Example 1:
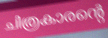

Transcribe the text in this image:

ചിത്രകാരന്റെ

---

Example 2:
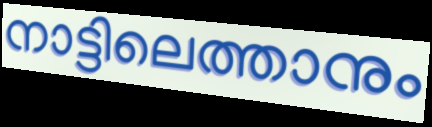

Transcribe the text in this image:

നാട്ടിലെത്താനും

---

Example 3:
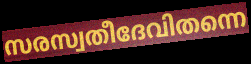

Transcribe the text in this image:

സരസ്വതീദേവിതന്നെ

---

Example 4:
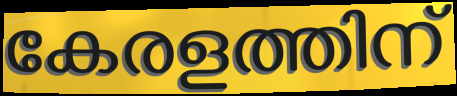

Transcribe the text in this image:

കേരളത്തിന്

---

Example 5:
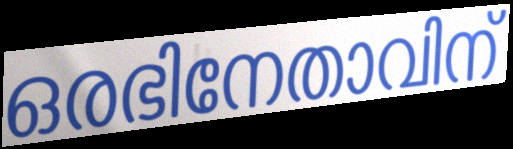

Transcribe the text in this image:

ഒരഭിനേതാവിന്